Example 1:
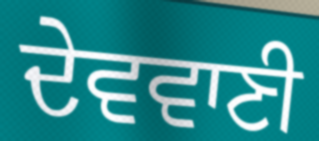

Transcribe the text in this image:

ਦੇਵਵਾਣੀ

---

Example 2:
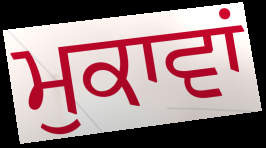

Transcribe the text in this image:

ਮੁਕਾਵਾਂ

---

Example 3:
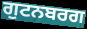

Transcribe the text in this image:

ਗੁਟਨਬਰਗ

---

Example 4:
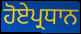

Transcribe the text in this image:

ਹੋਏਪ੍ਰਧਾਨ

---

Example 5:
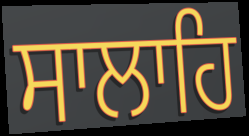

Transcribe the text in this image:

ਸਾਲਾਹਿ